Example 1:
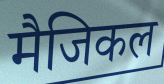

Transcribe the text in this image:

मैजिकल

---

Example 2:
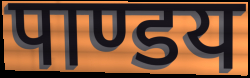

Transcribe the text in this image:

पाण्डय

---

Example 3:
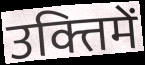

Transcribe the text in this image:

उक्तिमें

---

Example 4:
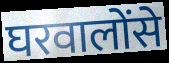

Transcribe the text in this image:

घरवालोंसे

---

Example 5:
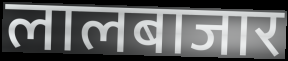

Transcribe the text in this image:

लालबाजार